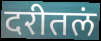
दरीतलं